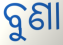
ବୁଣା